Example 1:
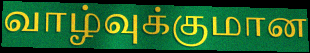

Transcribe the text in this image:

வாழ்வுக்குமான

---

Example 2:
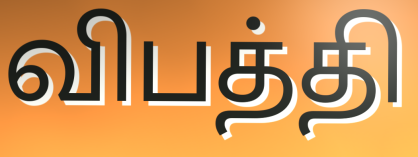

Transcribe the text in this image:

விபத்தி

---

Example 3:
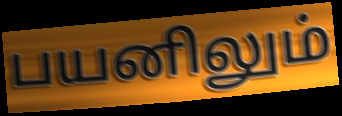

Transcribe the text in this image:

பயனிலும்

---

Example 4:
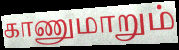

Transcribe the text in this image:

காணுமாறும்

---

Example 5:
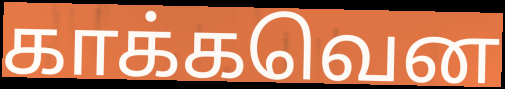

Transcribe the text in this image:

காக்கவென